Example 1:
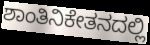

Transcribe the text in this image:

ಶಾಂತಿನಿಕೇತನದಲ್ಲಿ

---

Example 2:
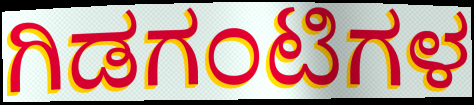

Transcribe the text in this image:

ಗಿಡಗಂಟಿಗಳ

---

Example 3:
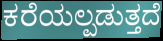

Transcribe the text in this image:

ಕರೆಯಲ್ಪಡುತ್ತದೆ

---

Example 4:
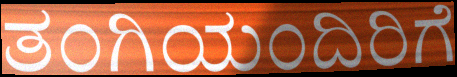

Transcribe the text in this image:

ತಂಗಿಯಂದಿರಿಗೆ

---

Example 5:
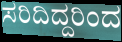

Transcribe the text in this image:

ಸರಿದಿದ್ದರಿಂದ